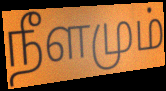
நீளமும்